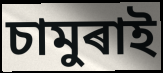
চামুৰাই